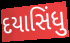
દયાસિંધુ